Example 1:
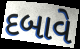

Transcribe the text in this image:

દબાવે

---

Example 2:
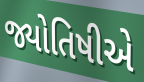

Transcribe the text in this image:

જ્યોતિષીએ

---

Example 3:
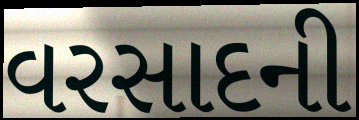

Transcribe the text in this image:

વરસાદની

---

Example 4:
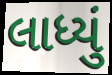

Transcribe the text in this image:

લાધ્યું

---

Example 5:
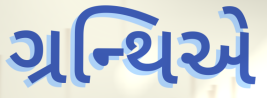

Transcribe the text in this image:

ગ્રન્થિએ